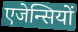
एजेन्सियों